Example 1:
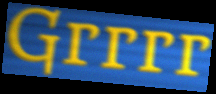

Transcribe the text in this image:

Grrrr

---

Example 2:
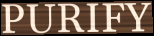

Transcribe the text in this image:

PURIFY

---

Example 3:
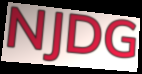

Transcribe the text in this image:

NJDG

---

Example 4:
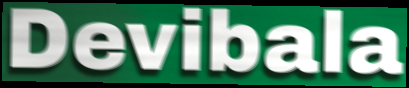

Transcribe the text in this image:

Devibala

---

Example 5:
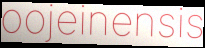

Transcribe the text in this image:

oojeinensis